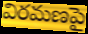
విరమణపై